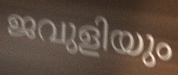
ജവുളിയും